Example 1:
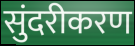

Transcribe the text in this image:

सुंदरीकरण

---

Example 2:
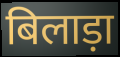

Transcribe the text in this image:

बिलाड़ा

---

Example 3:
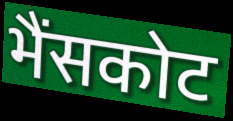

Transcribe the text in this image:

भैंसकोट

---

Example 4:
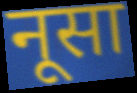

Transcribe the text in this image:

नूसा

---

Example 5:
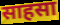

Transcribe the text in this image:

साहसा